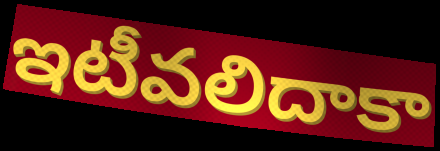
ఇటీవలిదాకా